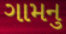
ગામનુ